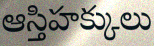
ఆస్తిహక్కులు